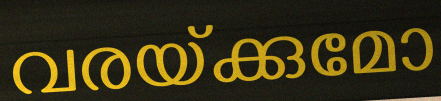
വരയ്‌ക്കുമോ